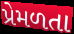
પ્રેમળતા